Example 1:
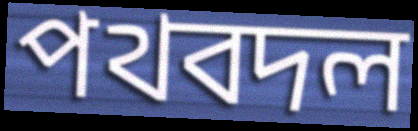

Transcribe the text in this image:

পথবদল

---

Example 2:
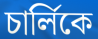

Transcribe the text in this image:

চার্লিকে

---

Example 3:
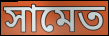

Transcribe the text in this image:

সামেত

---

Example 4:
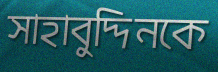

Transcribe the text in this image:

সাহাবুদ্দিনকে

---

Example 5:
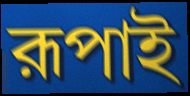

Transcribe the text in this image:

রূপাই